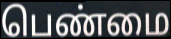
பெண்மை